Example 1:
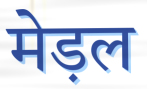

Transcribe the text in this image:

मेड़ल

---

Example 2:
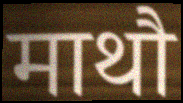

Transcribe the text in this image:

माथौ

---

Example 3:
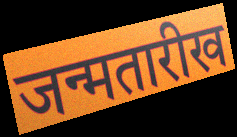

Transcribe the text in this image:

जन्मतारीख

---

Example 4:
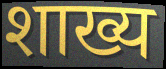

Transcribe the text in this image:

शाख्य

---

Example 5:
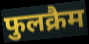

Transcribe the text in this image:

फुलक्रैम